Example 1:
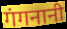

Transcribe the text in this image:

गंगनानी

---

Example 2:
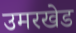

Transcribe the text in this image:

उमरखेड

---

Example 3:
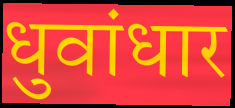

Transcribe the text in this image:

धुवांधार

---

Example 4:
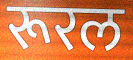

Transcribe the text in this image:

रूरल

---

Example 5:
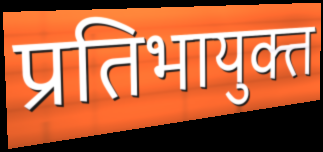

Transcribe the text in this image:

प्रतिभायुक्त